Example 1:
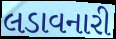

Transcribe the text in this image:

લડાવનારી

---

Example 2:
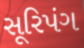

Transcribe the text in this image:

સૂરિપંગ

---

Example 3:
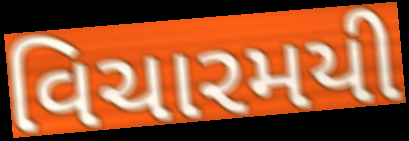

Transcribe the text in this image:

વિચારમયી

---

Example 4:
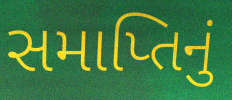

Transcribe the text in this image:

સમાપ્તિનું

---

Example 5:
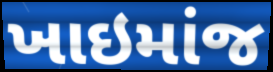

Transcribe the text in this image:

ખાઇમાંજ